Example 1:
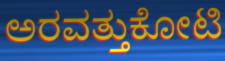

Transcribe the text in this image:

ಅರವತ್ತುಕೋಟಿ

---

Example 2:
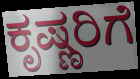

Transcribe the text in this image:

ಕೃಷ್ಣರಿಗೆ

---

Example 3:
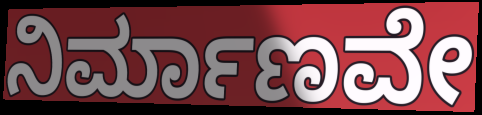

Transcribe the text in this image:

ನಿರ್ಮಾಣವೇ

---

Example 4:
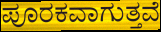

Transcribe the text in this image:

ಪೂರಕವಾಗುತ್ತವೆ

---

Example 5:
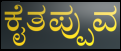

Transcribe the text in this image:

ಕೈತಪ್ಪುವ